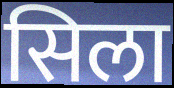
सिला